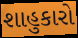
શાહુકારો